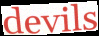
devils